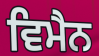
ਵਿਮੈਨ